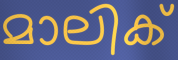
മാലിക്